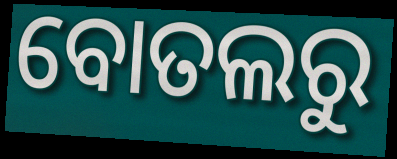
ବୋତଲରୁ